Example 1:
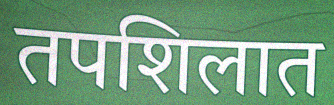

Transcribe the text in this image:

तपशिलात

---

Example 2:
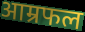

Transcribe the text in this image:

आम्रफल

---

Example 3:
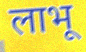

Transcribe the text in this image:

लाभू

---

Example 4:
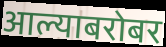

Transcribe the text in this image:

आल्याबरोबर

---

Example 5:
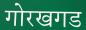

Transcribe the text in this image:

गोरखगड